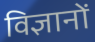
विज्ञानों